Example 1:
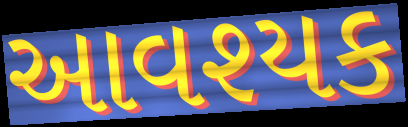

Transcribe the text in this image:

આવશ્યક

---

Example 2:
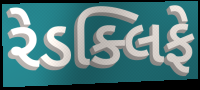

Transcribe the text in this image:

રેડક્લિફે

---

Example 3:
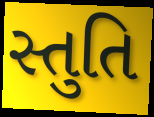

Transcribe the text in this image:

સ્તુતિ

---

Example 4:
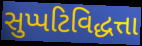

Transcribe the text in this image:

સુપ્પટિવિદ્ધત્તા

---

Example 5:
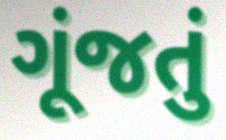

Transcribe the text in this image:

ગૂંજતું